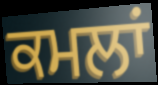
ਕਮਲਾਂ